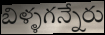
బిళ్ళగన్నేరు